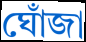
ঘোঁজা